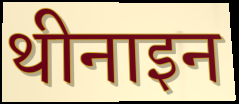
थीनाइन